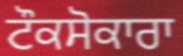
ਟੌਕਸੋਕਾਰਾ